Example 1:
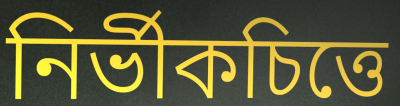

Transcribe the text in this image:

নির্ভীকচিত্তে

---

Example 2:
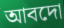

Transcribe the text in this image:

আবদো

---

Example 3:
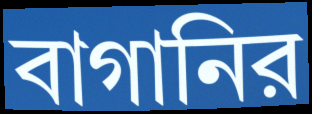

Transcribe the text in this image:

বাগানির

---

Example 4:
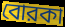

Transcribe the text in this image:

বোরকা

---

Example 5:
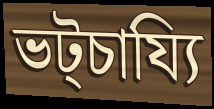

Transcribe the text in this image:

ভট্চায্যি